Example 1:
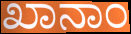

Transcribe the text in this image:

ಖಾನಾಂ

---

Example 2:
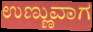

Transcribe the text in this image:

ಉಣ್ಣುವಾಗ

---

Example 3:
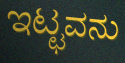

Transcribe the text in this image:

ಇಟ್ಟವನು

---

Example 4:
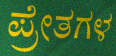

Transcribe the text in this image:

ಪ್ರೇತಗಳ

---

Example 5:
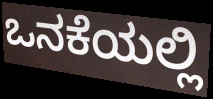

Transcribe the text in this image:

ಒನಕೆಯಲ್ಲಿ